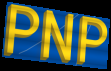
PNP